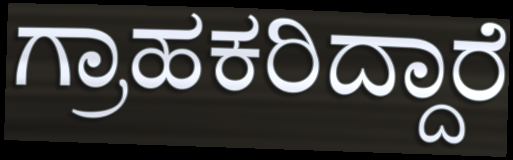
ಗ್ರಾಹಕರಿದ್ದಾರೆ